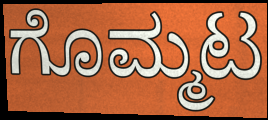
ಗೊಮ್ಮಟ